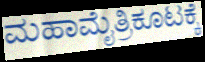
ಮಹಾಮೈತ್ರಿಕೂಟಕ್ಕೆ